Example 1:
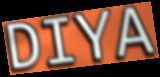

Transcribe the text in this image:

DIYA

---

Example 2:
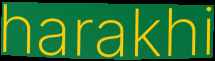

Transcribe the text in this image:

harakhi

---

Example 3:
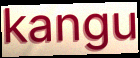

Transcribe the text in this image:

kangu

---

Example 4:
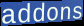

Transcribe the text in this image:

addons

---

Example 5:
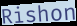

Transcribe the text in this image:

Rishon